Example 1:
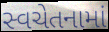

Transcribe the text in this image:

સ્વચેતનામાં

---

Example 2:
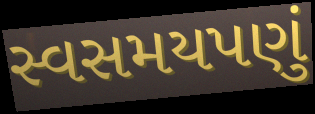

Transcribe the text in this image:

સ્વસમયપણું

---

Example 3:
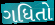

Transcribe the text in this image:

ગધિતો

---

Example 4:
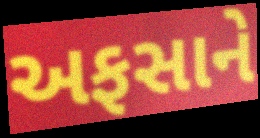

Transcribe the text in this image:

અફસાને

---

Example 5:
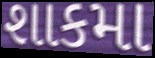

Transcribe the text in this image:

શાકમા